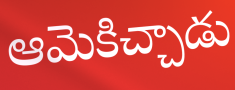
ఆమెకిచ్చాడు